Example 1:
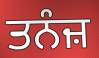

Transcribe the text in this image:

ਤਨੰਜ਼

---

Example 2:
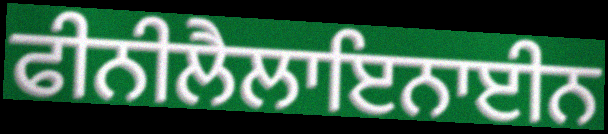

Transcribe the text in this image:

ਫੀਨੀਲੈਲਾਇਨਾਈਨ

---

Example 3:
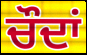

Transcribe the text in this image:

ਚੌਦਾਂ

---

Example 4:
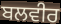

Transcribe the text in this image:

ਬਲਵੀਰ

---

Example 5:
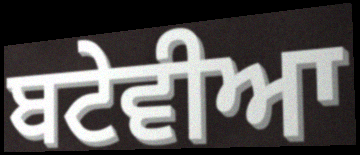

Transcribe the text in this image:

ਬਟੇਵੀਆ